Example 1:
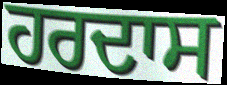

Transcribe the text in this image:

ਹਰਦਾਸ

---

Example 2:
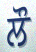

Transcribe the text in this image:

ਲੌ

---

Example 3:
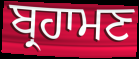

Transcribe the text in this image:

ਬ੍ਰਹਾਮਣ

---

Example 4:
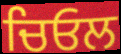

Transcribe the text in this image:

ਚਿਓਲ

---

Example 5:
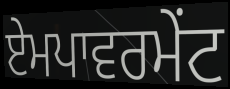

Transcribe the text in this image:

ਏਮਪਾਵਰਮੇਂਟ